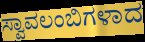
ಸ್ವಾವಲಂಬಿಗಳಾದ